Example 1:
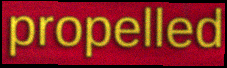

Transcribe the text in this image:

propelled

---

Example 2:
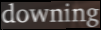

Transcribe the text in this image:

downing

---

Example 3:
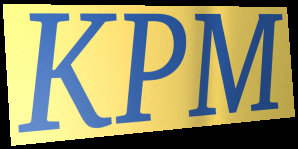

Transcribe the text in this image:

KPM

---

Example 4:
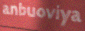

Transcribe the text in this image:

anbuoviya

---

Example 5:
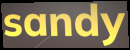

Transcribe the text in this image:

sandy